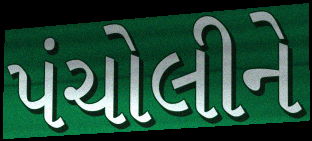
પંચોલીને